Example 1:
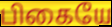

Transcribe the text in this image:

பிகையே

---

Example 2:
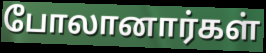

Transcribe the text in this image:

போலானார்கள்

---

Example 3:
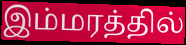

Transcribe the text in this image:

இம்மரத்தில்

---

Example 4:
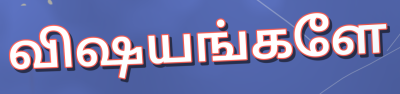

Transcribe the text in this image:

விஷயங்களே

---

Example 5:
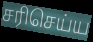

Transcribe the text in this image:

சரிசெய்ய